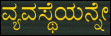
ವ್ಯವಸ್ಥೆಯನ್ನೇ